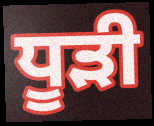
ਧੂੜੀ